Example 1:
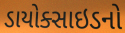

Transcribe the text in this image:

ડાયોક્સાઇડનો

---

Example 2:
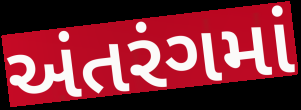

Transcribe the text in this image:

અંતરંગમાં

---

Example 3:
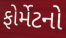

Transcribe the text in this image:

ફોર્મેટનો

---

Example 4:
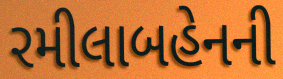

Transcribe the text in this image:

રમીલાબહેનની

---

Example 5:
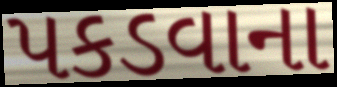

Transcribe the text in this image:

પકડવાના